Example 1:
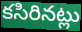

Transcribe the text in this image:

కసిరినట్లు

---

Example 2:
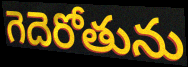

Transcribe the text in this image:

గెదెరోతును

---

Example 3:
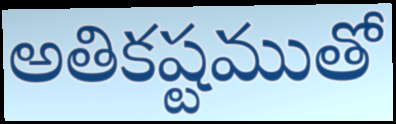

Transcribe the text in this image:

అతికష్టముతో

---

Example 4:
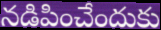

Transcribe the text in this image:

నడిపించేందుకు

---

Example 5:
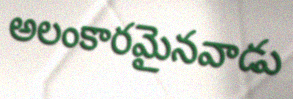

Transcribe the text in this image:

అలంకారమైనవాడు